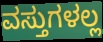
ವಸ್ತುಗಳಲ್ಲ